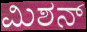
ಮಿಶನ್